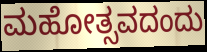
ಮಹೋತ್ಸವದಂದು